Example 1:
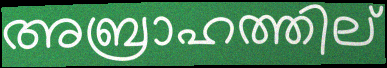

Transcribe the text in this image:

അബ്രാഹത്തില്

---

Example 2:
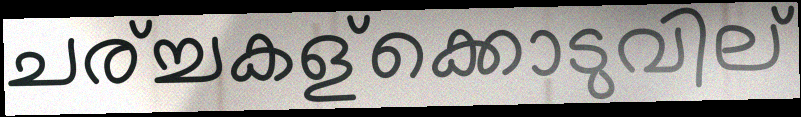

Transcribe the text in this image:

ചര്ച്ചകള്ക്കൊടുവില്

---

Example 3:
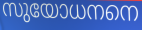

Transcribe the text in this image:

സുയോധനനെ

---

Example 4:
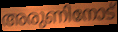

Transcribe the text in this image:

അരുണിനോട്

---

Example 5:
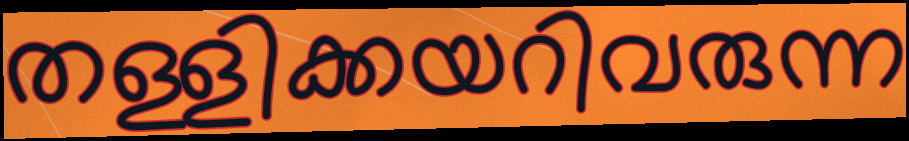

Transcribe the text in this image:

തള്ളിക്കയറിവരുന്ന